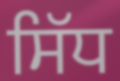
ਸਿੱਧ